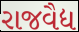
રાજવૈદ્ય